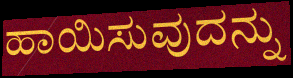
ಹಾಯಿಸುವುದನ್ನು